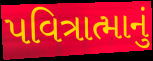
પવિત્રાત્માનું